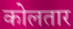
कोलतार